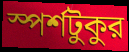
স্পর্শটুকুর